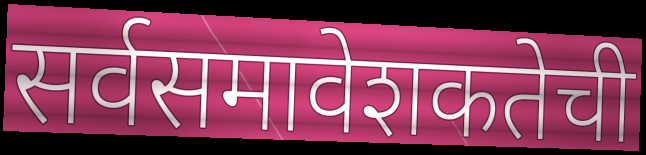
सर्वसमावेशकतेची